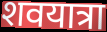
शवयात्रा